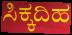
ಸಿಕ್ಕದಿಹ